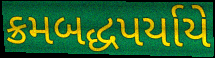
ક્રમબદ્ધપર્યાયે